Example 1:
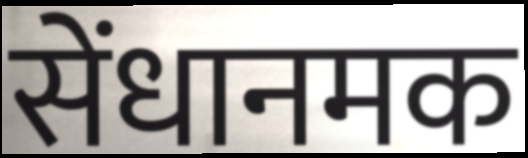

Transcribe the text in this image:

सेंधानमक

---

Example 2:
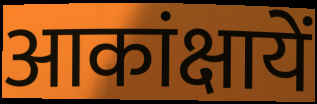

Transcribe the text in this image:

आकांक्षायें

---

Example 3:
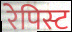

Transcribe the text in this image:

रेपिस्ट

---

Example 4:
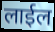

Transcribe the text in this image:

लाईल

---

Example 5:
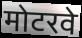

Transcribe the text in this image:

मोटरवे